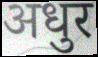
अधुर